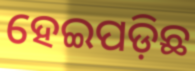
ହେଇପଡ଼ିଛ